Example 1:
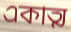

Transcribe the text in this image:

একাত্ম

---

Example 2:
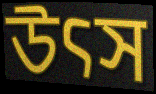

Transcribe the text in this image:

উৎস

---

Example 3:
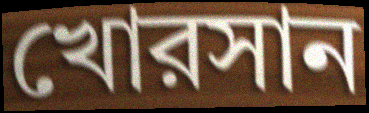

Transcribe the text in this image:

খোরসান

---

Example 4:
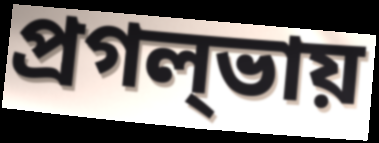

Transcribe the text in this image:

প্রগল্‌ভায়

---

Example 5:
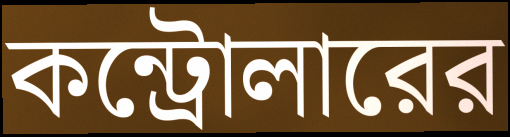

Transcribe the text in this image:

কন্ট্রোলারের